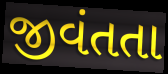
જીવંતતા